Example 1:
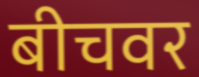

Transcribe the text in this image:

बीचवर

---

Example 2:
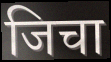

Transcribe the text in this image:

जिचा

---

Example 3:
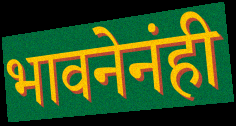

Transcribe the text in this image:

भावनेनंही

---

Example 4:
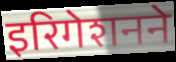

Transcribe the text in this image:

इरिगेशनने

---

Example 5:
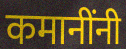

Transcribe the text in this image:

कमानींनी